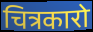
चित्रकारो